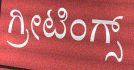
ಗ್ರೀಟಿಂಗ್ಸ್